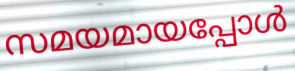
സമയമായപ്പോൾ